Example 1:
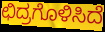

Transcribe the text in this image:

ಛಿದ್ರಗೊಳಿಸಿದೆ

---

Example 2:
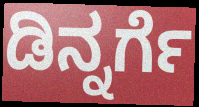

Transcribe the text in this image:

ಡಿನ್ನರ್ಗೆ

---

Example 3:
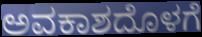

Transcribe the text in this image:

ಅವಕಾಶದೊಳಗೆ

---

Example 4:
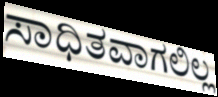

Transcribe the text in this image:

ಸಾಧಿತವಾಗಲಿಲ್ಲ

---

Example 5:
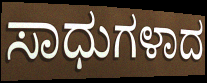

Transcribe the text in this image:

ಸಾಧುಗಳಾದ